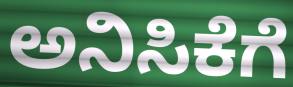
ಅನಿಸಿಕೆಗೆ